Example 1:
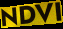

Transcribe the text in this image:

NDVI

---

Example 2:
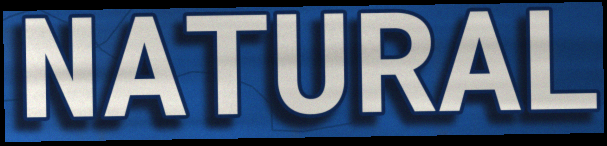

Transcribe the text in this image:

NATURAL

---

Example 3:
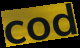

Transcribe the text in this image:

cod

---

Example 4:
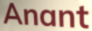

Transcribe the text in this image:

Anant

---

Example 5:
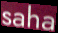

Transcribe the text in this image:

saha